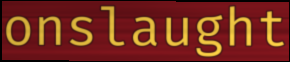
onslaught